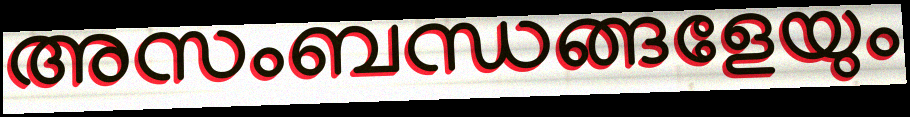
അസംബന്ധങ്ങളേയും